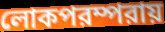
লোকপরম্পরায়